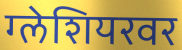
ग्लेशियरवर